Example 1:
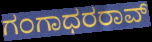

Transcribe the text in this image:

ಗಂಗಾಧರರಾವ್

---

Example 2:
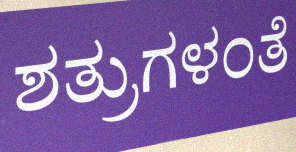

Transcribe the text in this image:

ಶತ್ರುಗಳಂತೆ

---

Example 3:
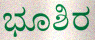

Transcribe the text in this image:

ಭೂಶಿರ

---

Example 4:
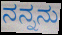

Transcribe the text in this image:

ನನ್ನನು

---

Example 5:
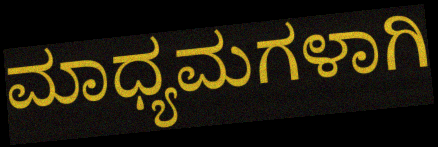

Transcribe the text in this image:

ಮಾಧ್ಯಮಗಳಾಗಿ